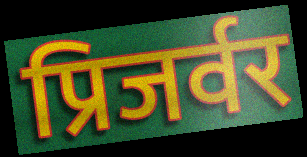
प्रिजर्वर